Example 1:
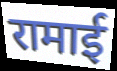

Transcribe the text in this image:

रामाई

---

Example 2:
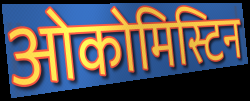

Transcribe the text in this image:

ओकोमिस्टिन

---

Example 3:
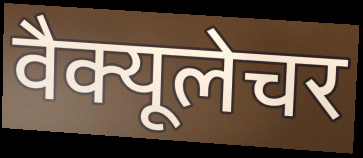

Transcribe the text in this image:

वैक्यूलेचर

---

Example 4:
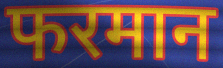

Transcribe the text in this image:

फरमान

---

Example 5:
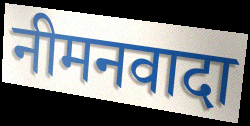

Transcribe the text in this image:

नीमनवादा